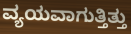
ವ್ಯಯವಾಗುತ್ತಿತ್ತು